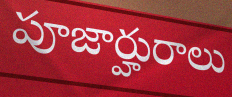
పూజార్హురాలు